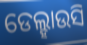
ଡେଲ୍ହାଉସି